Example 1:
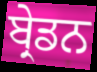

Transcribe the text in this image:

ਬ੍ਰੇਡਨ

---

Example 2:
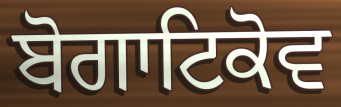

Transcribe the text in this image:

ਬੋਗਾਟਿਕੋਵ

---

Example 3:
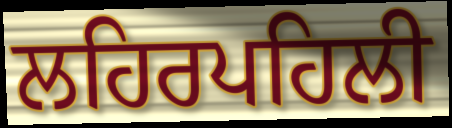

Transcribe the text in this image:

ਲਹਿਰਪਹਿਲੀ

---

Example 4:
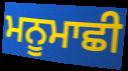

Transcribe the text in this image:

ਮਨੂਮਾਛੀ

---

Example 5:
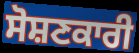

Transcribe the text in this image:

ਸੋਸ਼ਣਕਾਰੀ